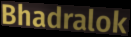
Bhadralok